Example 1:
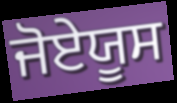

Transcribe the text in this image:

ਜੋਏਯੂਸ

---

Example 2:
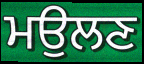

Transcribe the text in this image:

ਮਉਲਣ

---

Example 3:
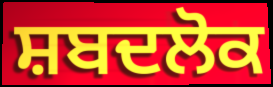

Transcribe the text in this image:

ਸ਼ਬਦਲੋਕ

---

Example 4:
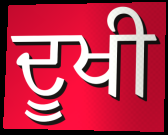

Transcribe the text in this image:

ਦੂਖੀ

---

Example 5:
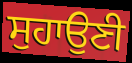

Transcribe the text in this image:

ਸੁਹਾਉਣੀ